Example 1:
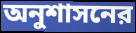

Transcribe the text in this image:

অনুশাসনের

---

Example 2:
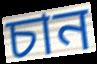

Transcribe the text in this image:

চান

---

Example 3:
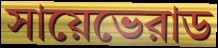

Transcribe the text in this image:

সায়েভেরাড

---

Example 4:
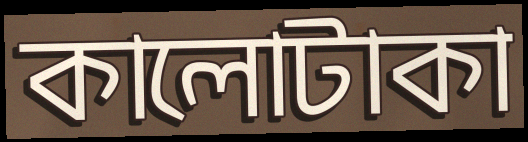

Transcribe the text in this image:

কালোটাকা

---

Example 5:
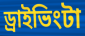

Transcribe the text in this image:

ড্রাইভিংটা